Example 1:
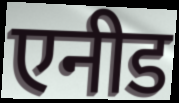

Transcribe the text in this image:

एनीड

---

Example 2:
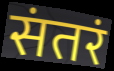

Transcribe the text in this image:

संतरं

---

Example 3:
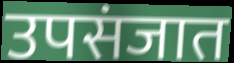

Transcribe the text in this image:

उपसंजात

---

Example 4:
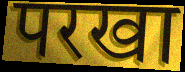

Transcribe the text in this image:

परखा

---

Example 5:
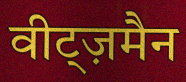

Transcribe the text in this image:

वीट्ज़मैन